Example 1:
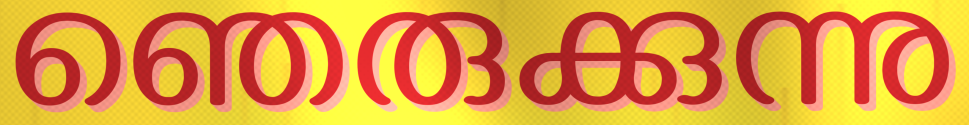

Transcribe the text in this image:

ഞെരുക്കുന്നു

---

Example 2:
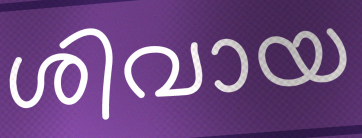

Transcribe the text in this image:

ശിവായ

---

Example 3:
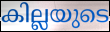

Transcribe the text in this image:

കില്ലയുടെ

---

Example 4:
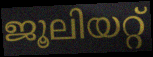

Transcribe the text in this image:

ജൂലിയറ്റ്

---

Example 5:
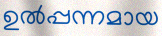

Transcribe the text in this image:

ഉൽപ്പന്നമായ